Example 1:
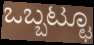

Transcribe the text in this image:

ಒಬ್ಬಟ್ಟೂ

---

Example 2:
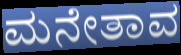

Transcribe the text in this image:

ಮನೇತಾವ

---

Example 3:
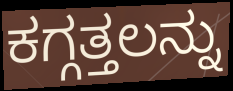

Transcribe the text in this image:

ಕಗ್ಗತ್ತಲನ್ನು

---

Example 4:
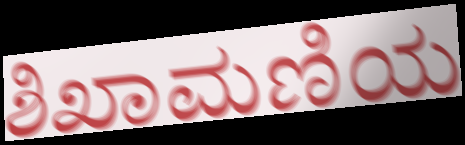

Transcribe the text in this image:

ಶಿಖಾಮಣಿಯ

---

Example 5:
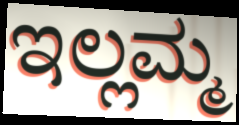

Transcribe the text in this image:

ಇಲ್ಲಮ್ಮ